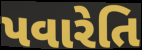
પવારેતિ